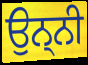
ਉਨ੍ਨੀ